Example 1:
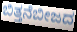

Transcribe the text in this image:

ಬಿತ್ತನೆಬೀಜದ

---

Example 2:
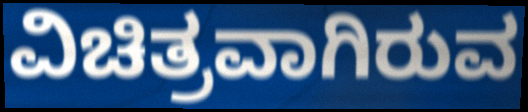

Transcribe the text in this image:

ವಿಚಿತ್ರವಾಗಿರುವ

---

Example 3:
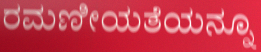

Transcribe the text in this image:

ರಮಣೀಯತೆಯನ್ನೂ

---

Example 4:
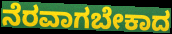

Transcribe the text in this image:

ನೆರವಾಗಬೇಕಾದ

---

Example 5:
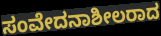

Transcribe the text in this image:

ಸಂವೇದನಾಶೀಲರಾದ